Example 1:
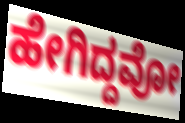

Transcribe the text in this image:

ಹೇಗಿದ್ದವೋ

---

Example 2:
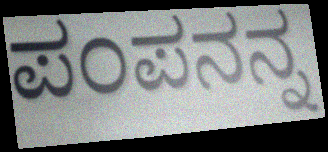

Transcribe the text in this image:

ಪಂಪನನ್ನ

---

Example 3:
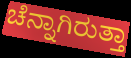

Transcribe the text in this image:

ಚೆನ್ನಾಗಿರುತ್ತಾ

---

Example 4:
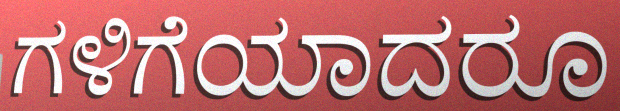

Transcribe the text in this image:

ಗಳಿಗೆಯಾದರೂ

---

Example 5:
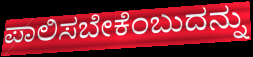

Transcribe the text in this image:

ಪಾಲಿಸಬೇಕೆಂಬುದನ್ನು